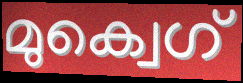
മുക്വെഗ്